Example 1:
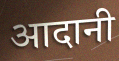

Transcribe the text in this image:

आदानी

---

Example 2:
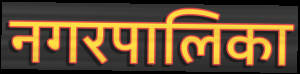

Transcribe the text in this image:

नगरपालिका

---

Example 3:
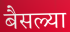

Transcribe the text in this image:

बैसल्या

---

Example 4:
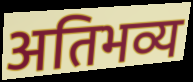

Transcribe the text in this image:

अतिभव्य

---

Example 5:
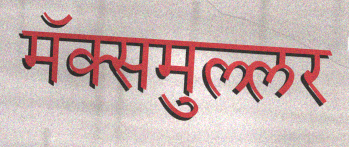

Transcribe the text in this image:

मॅक्समुल्लर